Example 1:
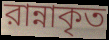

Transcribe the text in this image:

রান্নাকৃত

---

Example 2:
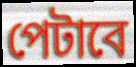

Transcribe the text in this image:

পেটাবে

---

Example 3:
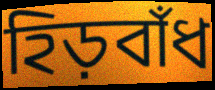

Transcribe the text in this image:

হিড়বাঁধ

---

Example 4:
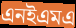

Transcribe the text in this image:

এনইএমএ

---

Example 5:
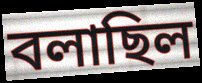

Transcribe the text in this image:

বলাছিল